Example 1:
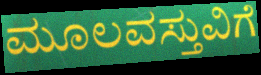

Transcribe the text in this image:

ಮೂಲವಸ್ತುವಿಗೆ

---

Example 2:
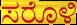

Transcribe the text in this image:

ಸರೊಳಿ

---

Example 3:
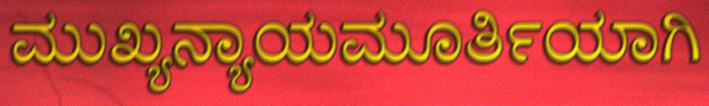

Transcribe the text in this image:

ಮುಖ್ಯನ್ಯಾಯಮೂರ್ತಿಯಾಗಿ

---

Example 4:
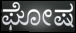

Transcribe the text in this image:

ಘೋಷ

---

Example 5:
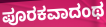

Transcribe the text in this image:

ಪೂರಕವಾದಂಥ